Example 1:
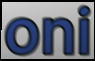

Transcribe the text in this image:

oni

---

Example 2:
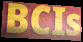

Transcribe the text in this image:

BCIs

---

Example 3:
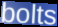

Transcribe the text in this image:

bolts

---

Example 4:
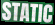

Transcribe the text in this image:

STATIC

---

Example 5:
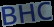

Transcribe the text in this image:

BHC